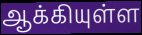
ஆக்கியுள்ள